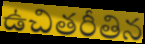
ఉచితరీతిన